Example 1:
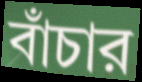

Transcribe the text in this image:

বাঁচার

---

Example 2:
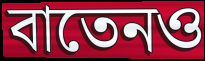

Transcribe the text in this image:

বাতেনও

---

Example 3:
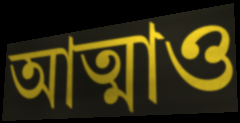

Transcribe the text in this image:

আত্মাও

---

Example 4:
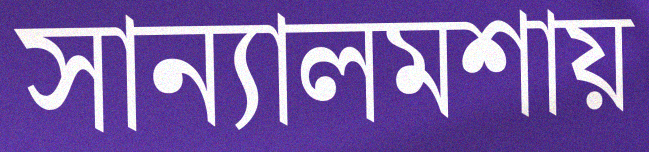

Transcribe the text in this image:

সান্যালমশায়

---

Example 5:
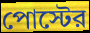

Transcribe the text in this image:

পোস্টের